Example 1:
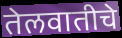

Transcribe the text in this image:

तेलवातीचे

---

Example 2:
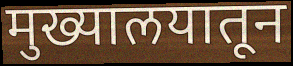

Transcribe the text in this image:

मुख्यालयातून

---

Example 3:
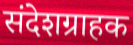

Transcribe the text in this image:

संदेशग्राहक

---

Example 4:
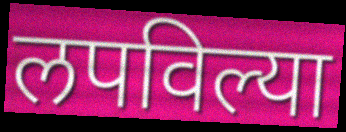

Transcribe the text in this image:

लपविल्या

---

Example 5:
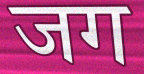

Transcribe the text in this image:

जग